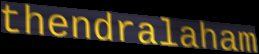
thendralaham